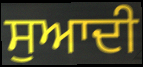
ਸੁਆਦੀ